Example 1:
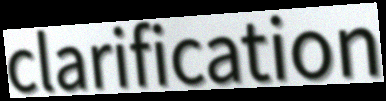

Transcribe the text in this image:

clarification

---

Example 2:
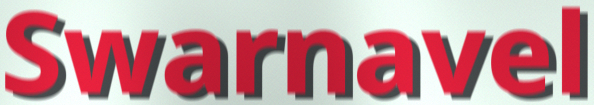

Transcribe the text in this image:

Swarnavel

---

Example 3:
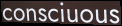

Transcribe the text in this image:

consciuous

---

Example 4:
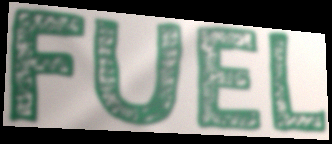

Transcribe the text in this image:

FUEL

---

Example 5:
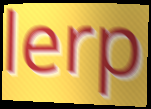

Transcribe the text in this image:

lerp